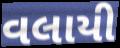
વલાયી